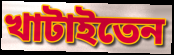
খাটাইতেন